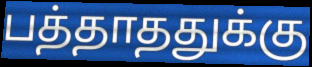
பத்தாததுக்கு